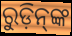
ରୁଡ଼ିନ୍‌ଙ୍କ